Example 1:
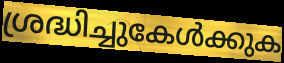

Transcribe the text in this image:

ശ്രദ്ധിച്ചുകേൾക്കുക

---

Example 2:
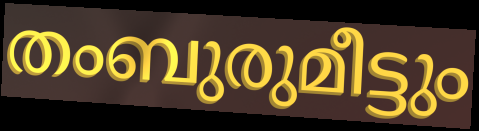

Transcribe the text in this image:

തംബുരുമീട്ടും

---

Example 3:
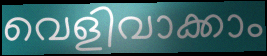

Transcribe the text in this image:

വെളിവാക്കാം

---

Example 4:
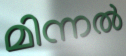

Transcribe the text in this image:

മിന്നൽ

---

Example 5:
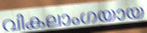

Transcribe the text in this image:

വികലാംഗയായ